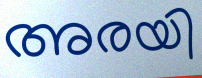
അരയി